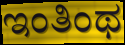
ಇಂತಿಂಥ